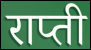
राप्ती